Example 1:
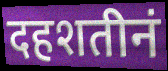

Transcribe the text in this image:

दहशतीनं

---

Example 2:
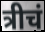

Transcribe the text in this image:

त्रीचं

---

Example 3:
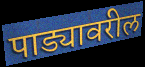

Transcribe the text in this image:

पाड्यावरील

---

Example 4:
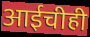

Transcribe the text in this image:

आईचीही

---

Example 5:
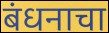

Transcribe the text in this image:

बंधनाचा